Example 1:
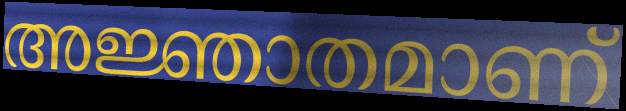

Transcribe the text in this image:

അജ്ഞാതമാണ്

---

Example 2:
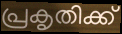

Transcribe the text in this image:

പ്രകൃതിക്ക്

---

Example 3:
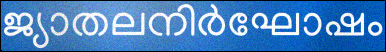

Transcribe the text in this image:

ജ്യാതലനിർഘോഷം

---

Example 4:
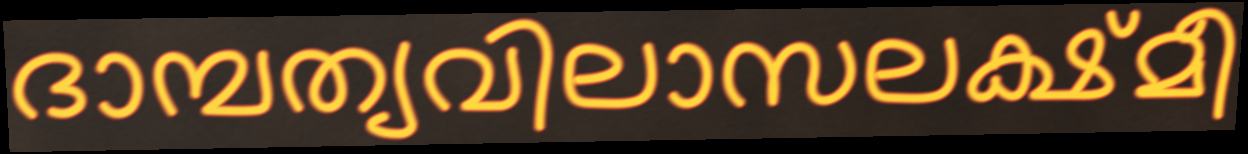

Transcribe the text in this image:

ദാമ്പത്യവിലാസലക്ഷ്മീ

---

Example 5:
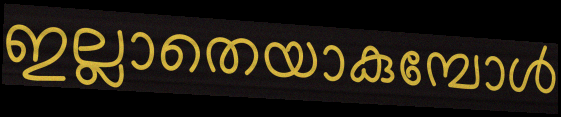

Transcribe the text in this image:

ഇല്ലാതെയാകുമ്പോൾ